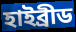
হাইব্ৰীড